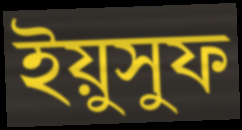
ইয়ুসুফ